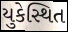
યુકેસ્થિત